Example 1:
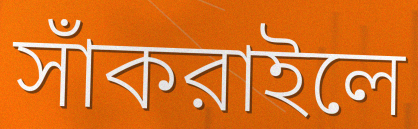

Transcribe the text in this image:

সাঁকরাইলে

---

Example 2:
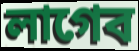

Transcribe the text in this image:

লাগেব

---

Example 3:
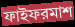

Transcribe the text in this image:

ফাইফরমাশ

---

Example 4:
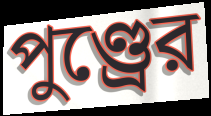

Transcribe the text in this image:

পুণ্ড্রের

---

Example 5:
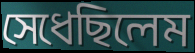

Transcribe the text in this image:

সেধেছিলেম